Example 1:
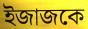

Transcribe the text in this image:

ইজাজকে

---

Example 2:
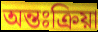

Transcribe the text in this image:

অন্তঃক্রিয়া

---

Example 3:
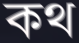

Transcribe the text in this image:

কথ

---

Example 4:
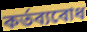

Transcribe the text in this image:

কর্তব্যবোধ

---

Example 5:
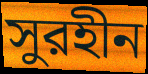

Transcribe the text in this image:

সুরহীন